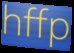
hffp